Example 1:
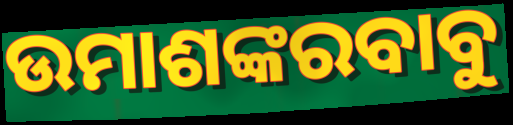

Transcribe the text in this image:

ଉମାଶଙ୍କରବାବୁ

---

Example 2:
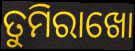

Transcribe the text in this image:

ତୁମିରାଖୋ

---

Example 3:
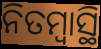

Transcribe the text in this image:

ନିତମ୍ବାସ୍ଥି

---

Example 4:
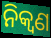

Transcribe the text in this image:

ନିକ୍ୱଣ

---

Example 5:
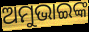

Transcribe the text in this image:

ଅମୁଭାଇଙ୍କ